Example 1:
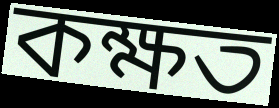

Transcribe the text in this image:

কক্ষত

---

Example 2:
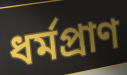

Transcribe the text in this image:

ধৰ্মপ্ৰাণ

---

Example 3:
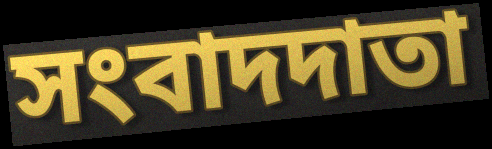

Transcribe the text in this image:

সংবাদদাতা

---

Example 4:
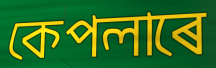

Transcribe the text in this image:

কেপলাৰে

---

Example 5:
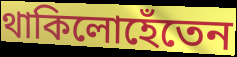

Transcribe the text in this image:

থাকিলোহেঁতেন